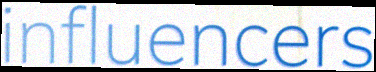
influencers